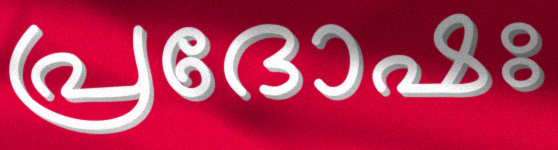
പ്രദോഷഃ